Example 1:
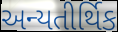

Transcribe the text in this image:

અન્યતીર્થિક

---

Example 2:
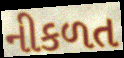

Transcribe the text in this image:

નીકળત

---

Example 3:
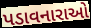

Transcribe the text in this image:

પડાવનારાઓ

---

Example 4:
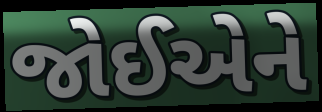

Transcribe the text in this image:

જોઈએને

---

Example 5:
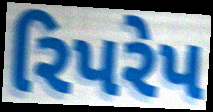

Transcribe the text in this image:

રિપરેપ